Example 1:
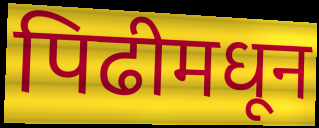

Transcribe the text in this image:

पिढीमधून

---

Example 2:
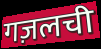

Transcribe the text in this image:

गज़लची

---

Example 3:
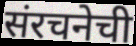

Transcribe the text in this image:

संरचनेची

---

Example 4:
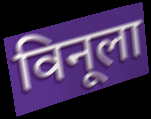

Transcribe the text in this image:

विनूला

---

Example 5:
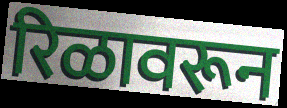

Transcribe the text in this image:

रिळावरून